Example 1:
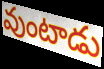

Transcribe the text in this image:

వుంటాడు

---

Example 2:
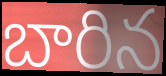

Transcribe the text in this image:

బారిన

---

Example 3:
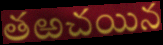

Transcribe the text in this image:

తఱచయిన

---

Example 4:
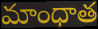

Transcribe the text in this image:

మాంధాత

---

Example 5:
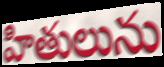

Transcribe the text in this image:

హితులును